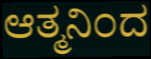
ಆತ್ಮನಿಂದ